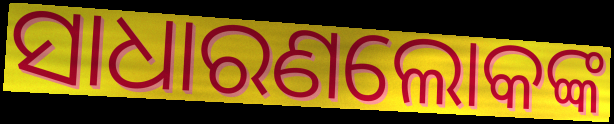
ସାଧାରଣଲୋକଙ୍କ